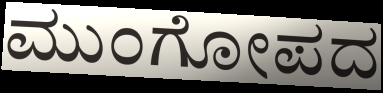
ಮುಂಗೋಪದ